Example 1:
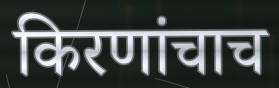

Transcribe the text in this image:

किरणांचाच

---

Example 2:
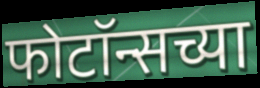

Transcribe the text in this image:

फोटॉन्सच्या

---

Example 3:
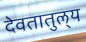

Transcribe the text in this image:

देवतातुल्य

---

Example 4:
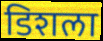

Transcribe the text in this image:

डिशला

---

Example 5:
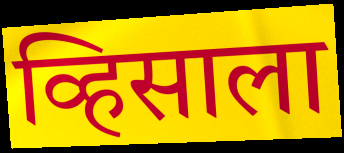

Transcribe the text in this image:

व्हिसाला